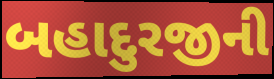
બહાદુરજીની